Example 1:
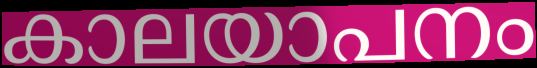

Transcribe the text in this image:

കാലയാപനം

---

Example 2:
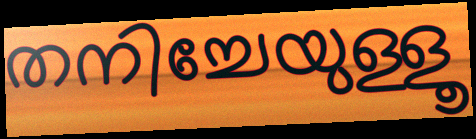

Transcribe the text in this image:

തനിച്ചേയുള്ളൂ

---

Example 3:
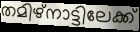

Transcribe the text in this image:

തമിഴ്നാട്ടിലേക്ക്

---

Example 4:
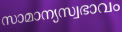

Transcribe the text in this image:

സാമാന്യസ്വഭാവം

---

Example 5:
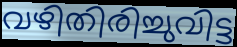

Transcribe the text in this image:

വഴിതിരിച്ചുവിട്ട